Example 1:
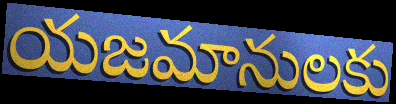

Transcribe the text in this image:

యజమానులకు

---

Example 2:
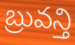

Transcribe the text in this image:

బ్రువన్తి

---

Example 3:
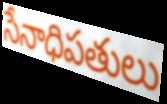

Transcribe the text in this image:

సేనాధిపతులు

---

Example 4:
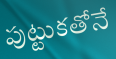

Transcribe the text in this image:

పుట్టుకతోనే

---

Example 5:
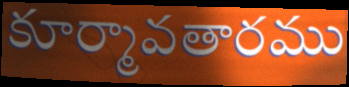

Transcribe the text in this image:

కూర్మావతారము